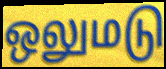
ஒலுமடு